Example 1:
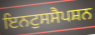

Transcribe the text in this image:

ਇਨਟੁਸਸੈਪਸ਼ਨ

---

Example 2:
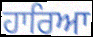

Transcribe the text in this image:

ਹਾਰਿਆ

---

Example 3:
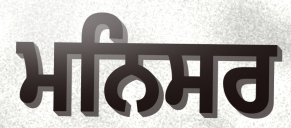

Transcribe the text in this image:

ਮਨਿਸਰ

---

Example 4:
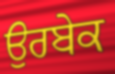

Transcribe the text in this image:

ਉਰਬੇਕ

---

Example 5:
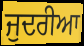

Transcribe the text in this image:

ਜੁਦਰੀਆ